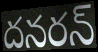
దనరన్